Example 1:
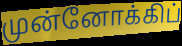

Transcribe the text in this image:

முன்னோக்கிப்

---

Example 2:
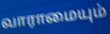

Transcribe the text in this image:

வாராமையும்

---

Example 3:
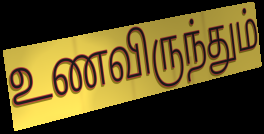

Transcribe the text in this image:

உணவிருந்தும்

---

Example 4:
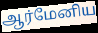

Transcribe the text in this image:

ஆர்மேனிய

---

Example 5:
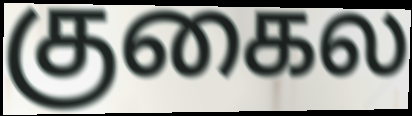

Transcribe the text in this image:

குகைல